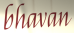
bhavan